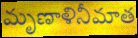
మృణాళినీమాత